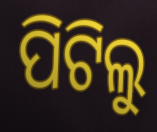
ପିଟିଲୁ